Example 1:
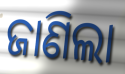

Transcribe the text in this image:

ଜାଣିଲା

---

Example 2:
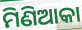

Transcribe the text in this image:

ମିଣିଆକା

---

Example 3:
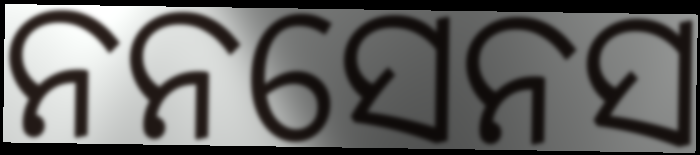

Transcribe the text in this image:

ନନସେନସ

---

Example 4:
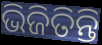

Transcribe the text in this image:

ଭିଜିତିନ୍ତି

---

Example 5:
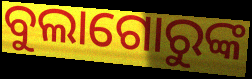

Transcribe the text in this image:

ବୁଲାଗୋରୁଙ୍କ